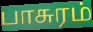
பாசுரம்